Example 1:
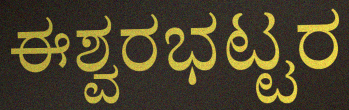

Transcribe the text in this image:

ಈಶ್ವರಭಟ್ಟರ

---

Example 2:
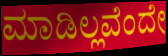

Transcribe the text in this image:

ಮಾಡಿಲ್ಲವೆಂದೇ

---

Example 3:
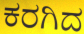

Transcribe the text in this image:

ಕರಗಿದ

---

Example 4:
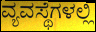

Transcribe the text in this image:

ವ್ಯವಸ್ಥೆಗಳಲ್ಲಿ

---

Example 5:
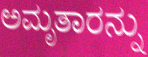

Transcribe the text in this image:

ಅಮೃತಾರನ್ನು